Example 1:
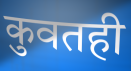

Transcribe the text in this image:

कुवतही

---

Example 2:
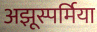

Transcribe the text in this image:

अझूस्पर्मिया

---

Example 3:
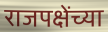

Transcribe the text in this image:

राजपक्षेंच्या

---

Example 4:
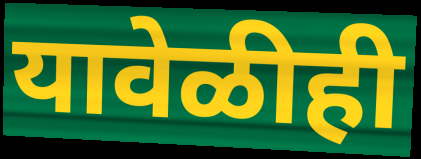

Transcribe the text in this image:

यावेळीही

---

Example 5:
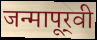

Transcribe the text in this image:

जन्मापूर्वी